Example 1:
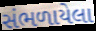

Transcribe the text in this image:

સંભળાયેલા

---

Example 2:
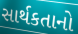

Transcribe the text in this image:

સાર્થકતાનો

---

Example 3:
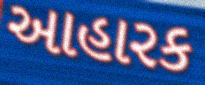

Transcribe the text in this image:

આહારક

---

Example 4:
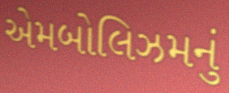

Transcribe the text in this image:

એમબોલિઝમનું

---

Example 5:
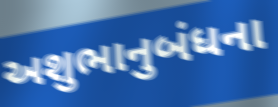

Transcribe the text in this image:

અશુભાનુબંધના